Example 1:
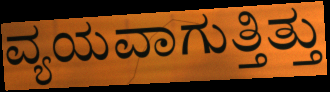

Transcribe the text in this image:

ವ್ಯಯವಾಗುತ್ತಿತ್ತು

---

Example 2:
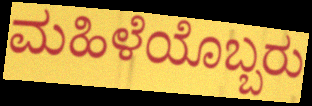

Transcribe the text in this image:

ಮಹಿಳೆಯೊಬ್ಬರು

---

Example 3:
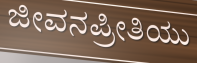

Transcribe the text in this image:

ಜೀವನಪ್ರೀತಿಯು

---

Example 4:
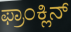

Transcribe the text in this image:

ಫ್ರಾಂಕ್ಲಿನ್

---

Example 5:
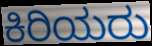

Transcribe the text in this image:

ಕಿರಿಯರು